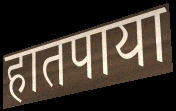
हातपाया